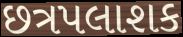
છત્રપલાશક